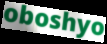
oboshyo